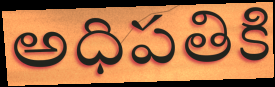
అధిపతికి